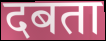
दबता